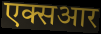
एक्सआर